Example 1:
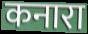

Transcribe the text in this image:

कनारा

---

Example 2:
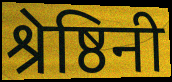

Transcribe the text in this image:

श्रेष्ठिनी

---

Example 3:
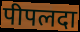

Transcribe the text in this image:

पीपलदा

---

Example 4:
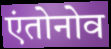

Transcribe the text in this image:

एंतोनोव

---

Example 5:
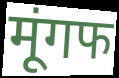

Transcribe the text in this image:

मूंगफ